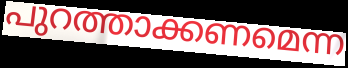
പുറത്താക്കണമെന്ന